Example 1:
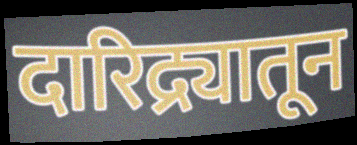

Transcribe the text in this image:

दारिद्र्यातून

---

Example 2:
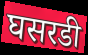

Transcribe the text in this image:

घसरडी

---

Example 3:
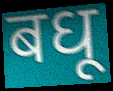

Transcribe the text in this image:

बधू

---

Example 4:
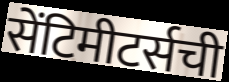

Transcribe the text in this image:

सेंटिमीटर्सची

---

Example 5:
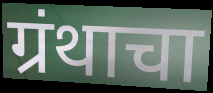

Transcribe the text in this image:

ग्रंथाचा